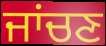
ਜਾਂਚਣ